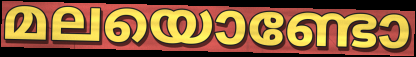
മലയൊണ്ടോ